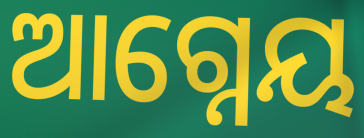
ଆଗ୍ନେୟ